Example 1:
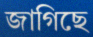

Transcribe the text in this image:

জাগিছে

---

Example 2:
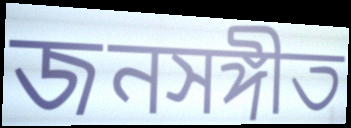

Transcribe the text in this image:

জনসঙ্গীত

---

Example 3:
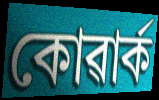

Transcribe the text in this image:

কোৱাৰ্ক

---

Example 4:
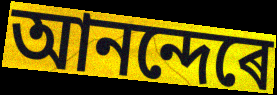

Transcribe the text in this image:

আনন্দেৰে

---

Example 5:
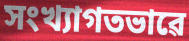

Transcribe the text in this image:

সংখ্যাগতভাৱে